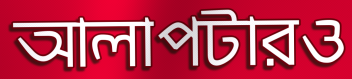
আলাপটারও